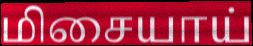
மிசையாய்